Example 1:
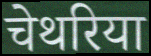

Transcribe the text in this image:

चेथरिया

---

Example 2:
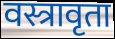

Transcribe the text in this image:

वस्त्रावृता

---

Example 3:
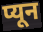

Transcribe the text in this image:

प्यून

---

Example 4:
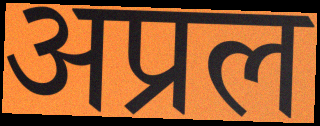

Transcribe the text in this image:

अप्रल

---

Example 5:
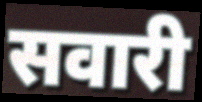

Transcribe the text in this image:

सवारी